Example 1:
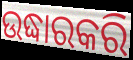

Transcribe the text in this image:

ଉଦ୍ଧାରକରି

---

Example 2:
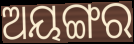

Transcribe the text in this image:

ଅୟଙ୍ଗର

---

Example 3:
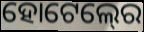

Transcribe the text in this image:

ହୋଟେଲ୍‍ରେ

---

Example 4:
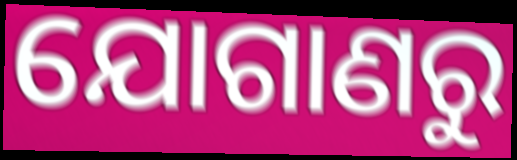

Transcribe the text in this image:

ଯୋଗାଣରୁ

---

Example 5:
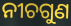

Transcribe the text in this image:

ନୀଚଗୁଣ